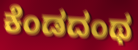
ಕೆಂಡದಂಥ